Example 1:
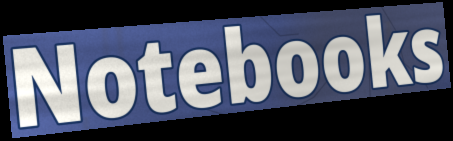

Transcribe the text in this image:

Notebooks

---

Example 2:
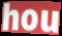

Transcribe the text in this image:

hou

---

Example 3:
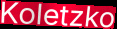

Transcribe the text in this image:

Koletzko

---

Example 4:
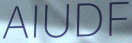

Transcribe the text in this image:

AIUDF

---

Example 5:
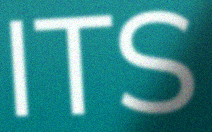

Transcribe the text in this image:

ITS